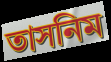
তাসনিম